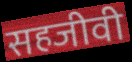
सहजीवी